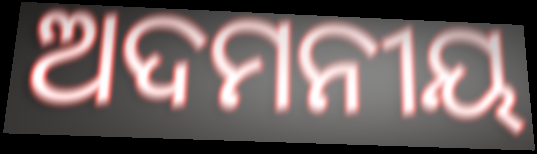
ଅଦମନୀୟ